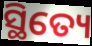
ସ୍ଥିତ୍ୟେ